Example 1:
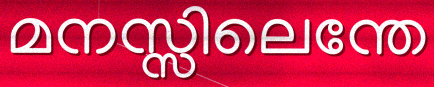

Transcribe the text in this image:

മനസ്സിലെന്തേ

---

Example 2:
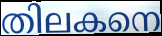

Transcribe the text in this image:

തിലകനെ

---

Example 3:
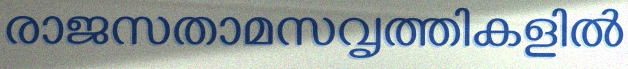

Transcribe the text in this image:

രാജസതാമസവൃത്തികളിൽ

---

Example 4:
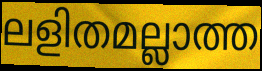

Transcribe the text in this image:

ലളിതമല്ലാത്ത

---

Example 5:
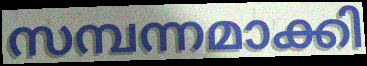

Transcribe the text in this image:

സമ്പന്നമാക്കി